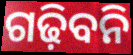
ଗଢ଼ିବନି